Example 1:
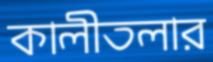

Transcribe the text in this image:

কালীতলার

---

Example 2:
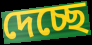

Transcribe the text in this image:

দেচ্ছে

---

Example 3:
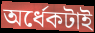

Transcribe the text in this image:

অর্ধেকটাই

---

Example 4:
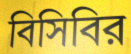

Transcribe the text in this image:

বিসিবির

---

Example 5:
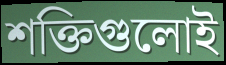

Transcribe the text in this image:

শক্তিগুলোই